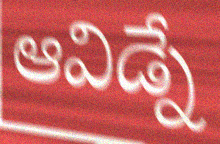
ఆవిడ్నే